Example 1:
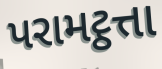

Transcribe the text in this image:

પરામટ્ઠત્તા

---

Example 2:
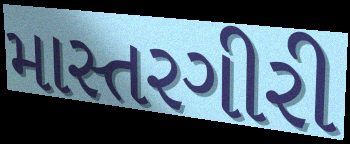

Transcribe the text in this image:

માસ્તરગીરી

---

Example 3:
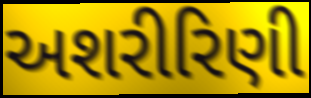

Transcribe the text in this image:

અશરીરિણી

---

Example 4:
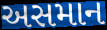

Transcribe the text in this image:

અસમાન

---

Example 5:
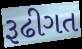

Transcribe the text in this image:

રૂઢીગત